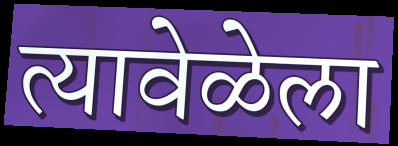
त्यावेळेला